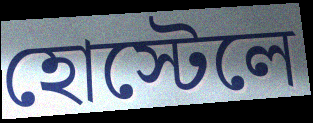
হোস্টেলে